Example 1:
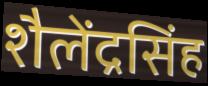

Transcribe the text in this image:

शैलेंद्रसिंह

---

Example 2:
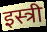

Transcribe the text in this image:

इस्त्री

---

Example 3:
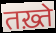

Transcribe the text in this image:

तख़्ते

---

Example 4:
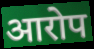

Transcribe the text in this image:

आरोप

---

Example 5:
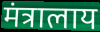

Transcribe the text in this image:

मंत्रालाय